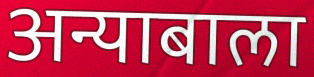
अन्याबाला